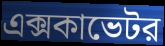
এক্সকাভেটর